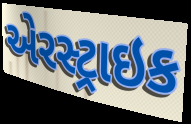
એરસ્ટ્રાઇક